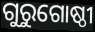
ଗୁରୁଗୋଷ୍ଠୀ